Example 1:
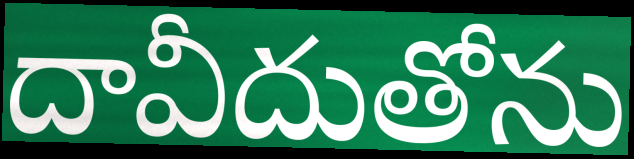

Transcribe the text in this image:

దావీదుతోను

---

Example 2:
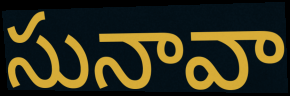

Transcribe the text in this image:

సునావా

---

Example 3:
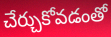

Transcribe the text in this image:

చేర్చుకోవడంతో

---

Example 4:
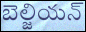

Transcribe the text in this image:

బెల్జియన్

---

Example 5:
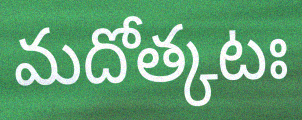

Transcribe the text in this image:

మదోత్కటః